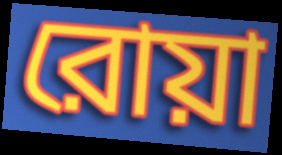
রোয়া